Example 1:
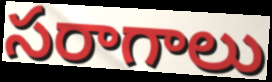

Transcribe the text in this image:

సరాగాలు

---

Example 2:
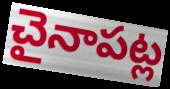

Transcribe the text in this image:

చైనాపట్ల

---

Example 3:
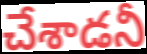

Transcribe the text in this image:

చేశాడనీ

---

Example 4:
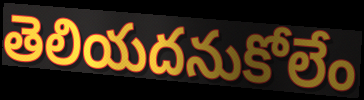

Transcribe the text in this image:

తెలియదనుకోలేం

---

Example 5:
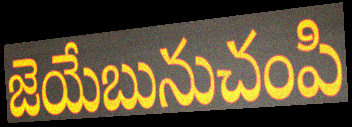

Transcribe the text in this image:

జెయేబునుచంపి